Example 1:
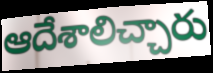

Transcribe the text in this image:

ఆదేశాలిచ్చారు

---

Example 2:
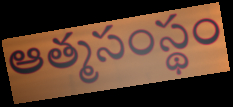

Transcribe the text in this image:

ఆత్మసంస్థం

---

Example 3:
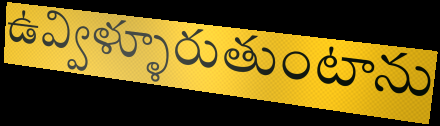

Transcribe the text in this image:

ఉవ్విళ్ళూరుతుంటాను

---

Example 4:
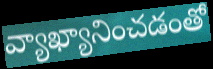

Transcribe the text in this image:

వ్యాఖ్యానించడంతో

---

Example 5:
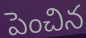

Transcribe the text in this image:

పెంచిన